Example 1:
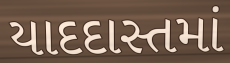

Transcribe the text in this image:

યાદદાસ્તમાં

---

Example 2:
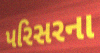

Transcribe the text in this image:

પરિસરના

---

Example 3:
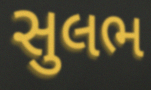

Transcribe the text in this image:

સુલભ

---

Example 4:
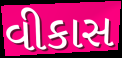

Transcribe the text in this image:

વીકાસ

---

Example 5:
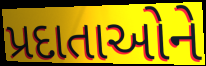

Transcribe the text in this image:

પ્રદાતાઓને